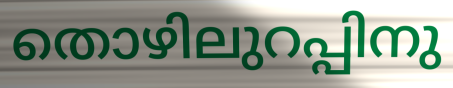
തൊഴിലുറപ്പിനു